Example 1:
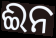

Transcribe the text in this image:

ଈନ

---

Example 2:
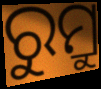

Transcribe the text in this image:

ରୁମ୍ରୁ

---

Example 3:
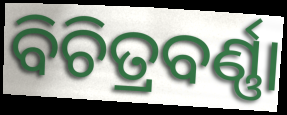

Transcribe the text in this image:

ବିଚିତ୍ରବର୍ଣ୍ଣା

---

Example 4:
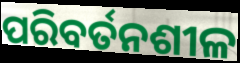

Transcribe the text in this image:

ପରିବର୍ତନଶୀଳ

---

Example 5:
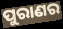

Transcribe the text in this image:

ପୁରାଣର